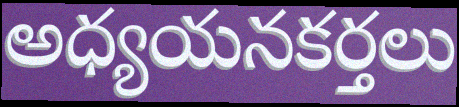
అధ్యయనకర్తలు